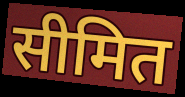
सीमित